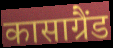
कासाग्रैंड